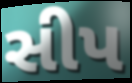
સીપ